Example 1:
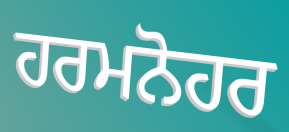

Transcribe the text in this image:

ਹਰਮਨੋਹਰ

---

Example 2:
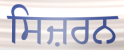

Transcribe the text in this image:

ਸਿਜ਼ਰਨ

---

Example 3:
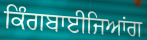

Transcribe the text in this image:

ਕਿੰਗਬਾਈਜਿਆਂਗ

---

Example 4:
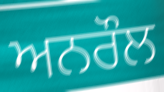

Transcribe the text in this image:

ਅਨਰੌਲ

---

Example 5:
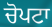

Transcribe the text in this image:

ਚੋਪਟਾ